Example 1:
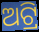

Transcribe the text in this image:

ଅଟ୍ରି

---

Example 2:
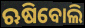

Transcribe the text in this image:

ଋଷିବୋଲି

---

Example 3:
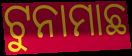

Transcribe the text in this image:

ଟୁନାମାଛ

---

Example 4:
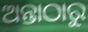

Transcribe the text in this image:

ଅନ୍ତାଠାରୁ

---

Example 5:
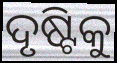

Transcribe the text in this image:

ଦୃଷ୍ଟିକୁ